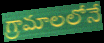
గ్రామాలలోనే